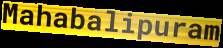
Mahabalipuram